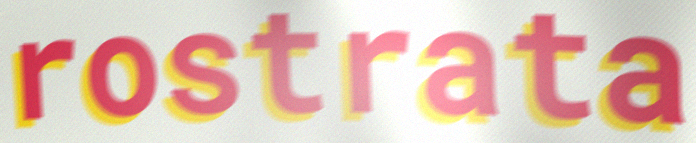
rostrata